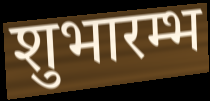
शुभारम्‍भ